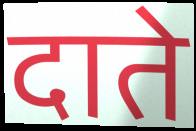
दाते